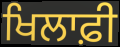
ਖਿਲਾਫ਼ੀ